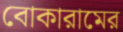
বোকারামের